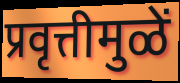
प्रवृत्तीमुळें